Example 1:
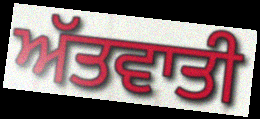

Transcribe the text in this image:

ਅੱਤਵਾਤੀ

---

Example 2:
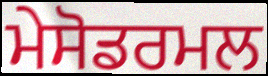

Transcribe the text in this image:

ਮੇਸੋਡਰਮਲ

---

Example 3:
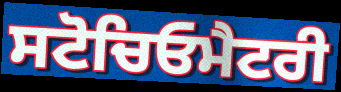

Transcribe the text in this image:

ਸਟੋਚਿਓਮੈਟਰੀ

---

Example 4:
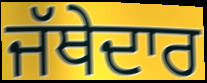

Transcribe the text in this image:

ਜੱਥੇਦਾਰ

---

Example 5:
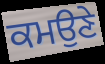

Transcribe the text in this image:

ਕਮਉਣੇ